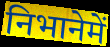
निभानेमें